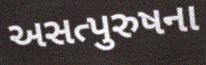
અસત્પુરુષના